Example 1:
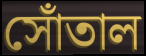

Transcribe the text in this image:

সোঁতাল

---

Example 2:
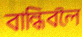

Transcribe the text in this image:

বান্ধিবলৈ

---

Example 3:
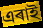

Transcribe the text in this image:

এৰাই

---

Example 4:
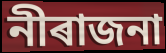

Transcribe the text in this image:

নীৰাজনা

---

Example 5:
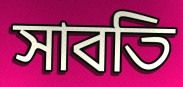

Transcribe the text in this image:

সাবতি